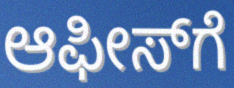
ಆಫೀಸ್‍ಗೆ